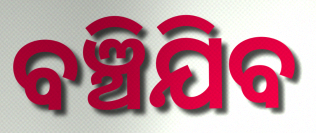
ବଞ୍ଚିଯିବ